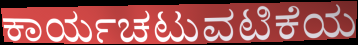
ಕಾರ್ಯಚಟುವಟಿಕೆಯ